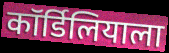
कॉर्डिलियाला